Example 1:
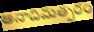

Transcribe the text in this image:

అనాదిమత్పరం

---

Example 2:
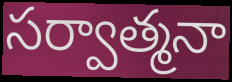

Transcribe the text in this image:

సర్వాత్మనా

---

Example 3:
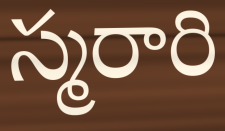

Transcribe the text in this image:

స్మరారి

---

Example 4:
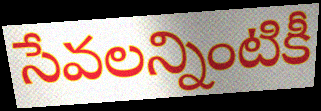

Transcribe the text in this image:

సేవలన్నింటికీ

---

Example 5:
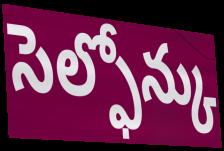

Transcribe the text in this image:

సెల్ఫోన్కు